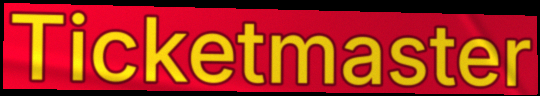
Ticketmaster